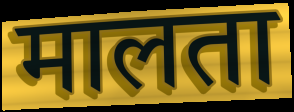
मालता